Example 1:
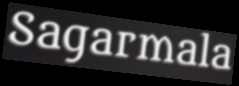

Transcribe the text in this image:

Sagarmala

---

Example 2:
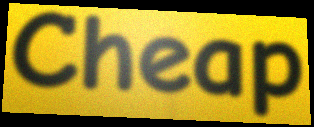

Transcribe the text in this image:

Cheap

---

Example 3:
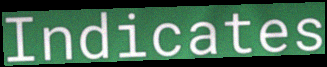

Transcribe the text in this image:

Indicates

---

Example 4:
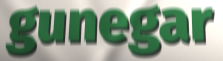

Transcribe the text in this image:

gunegar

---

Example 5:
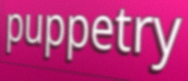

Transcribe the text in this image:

puppetry